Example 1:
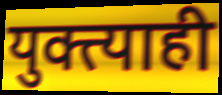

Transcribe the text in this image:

युक्त्याही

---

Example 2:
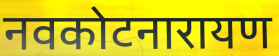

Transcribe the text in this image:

नवकोटनारायण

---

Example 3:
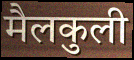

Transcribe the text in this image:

मैलकुली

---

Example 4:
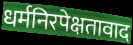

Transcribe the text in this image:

धर्मनिरपेक्षतावाद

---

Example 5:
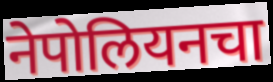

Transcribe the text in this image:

नेपोलियनचा